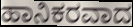
ಹಾನಿಕರವಾದ